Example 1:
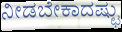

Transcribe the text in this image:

ನೀಡಬೇಕಾದಷ್ಟು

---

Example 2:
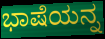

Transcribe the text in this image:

ಭಾಷೆಯನ್ನ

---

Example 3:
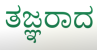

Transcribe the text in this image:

ತಜ್ಞರಾದ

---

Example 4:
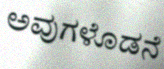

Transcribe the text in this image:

ಅವುಗಳೊಡನೆ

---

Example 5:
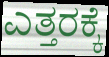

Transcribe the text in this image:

ಎತ್ತರಕ್ಕೆ